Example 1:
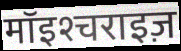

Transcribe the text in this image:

मॉइश्चराइज़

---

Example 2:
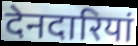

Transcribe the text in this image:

देनदारियां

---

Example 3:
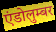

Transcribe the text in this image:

एंडोलुम्बर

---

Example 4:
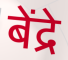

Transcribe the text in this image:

बेंद्रे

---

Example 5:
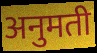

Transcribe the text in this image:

अनुमती